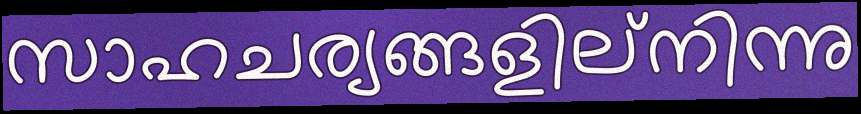
സാഹചര്യങ്ങളില്നിന്നു